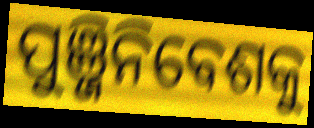
ପୁଞ୍ଜିନିବେଶକୁ